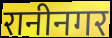
रानीनगर